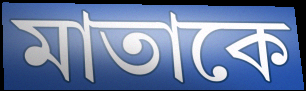
মাতাকে